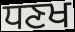
ਧਣਖ